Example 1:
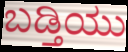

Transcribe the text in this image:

ಬಡ್ತಿಯು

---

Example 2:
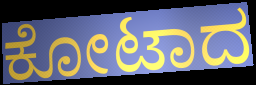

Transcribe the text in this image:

ಕೋಟಾದ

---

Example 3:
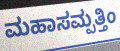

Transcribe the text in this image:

ಮಹಾಸಮ್ಪತ್ತಿಂ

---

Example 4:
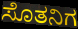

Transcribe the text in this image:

ಸೊತನಿಗ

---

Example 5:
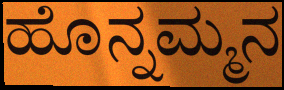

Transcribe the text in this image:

ಹೊನ್ನಮ್ಮನ